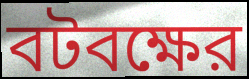
বটবক্ষের